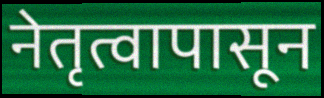
नेतृत्वापासून